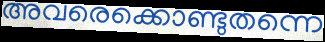
അവരെക്കൊണ്ടുതന്നെ